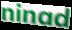
ninad